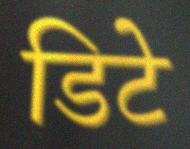
डिटे